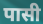
पासी